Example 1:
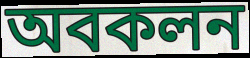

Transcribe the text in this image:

অবকলন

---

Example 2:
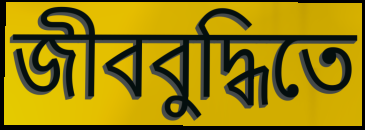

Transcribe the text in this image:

জীববুদ্ধিতে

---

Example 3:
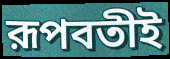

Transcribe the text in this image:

রূপবতীই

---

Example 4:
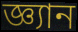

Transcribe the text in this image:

জ্ঞ্যান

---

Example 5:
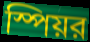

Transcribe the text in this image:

স্পিয়র